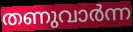
തണുവാർന്ന